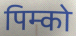
पिम्को